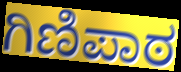
ಗಿಣಿಪಾಠ